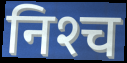
निश्च